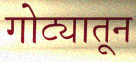
गोट्यातून